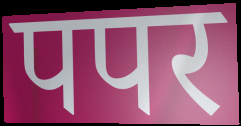
पपर